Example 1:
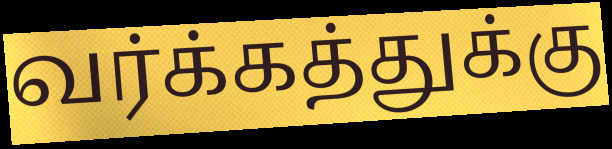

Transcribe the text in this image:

வர்க்கத்துக்கு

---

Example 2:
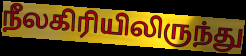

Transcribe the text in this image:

நீலகிரியிலிருந்து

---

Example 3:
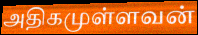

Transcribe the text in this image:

அதிகமுள்ளவன்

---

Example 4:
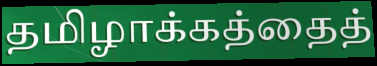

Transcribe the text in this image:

தமிழாக்கத்தைத்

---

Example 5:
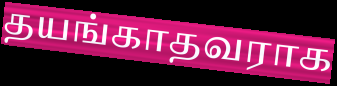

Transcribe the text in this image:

தயங்காதவராக